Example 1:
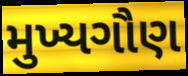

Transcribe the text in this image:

મુખ્યગૌણ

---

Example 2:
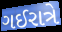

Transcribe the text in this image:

ગઈરાત્રે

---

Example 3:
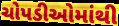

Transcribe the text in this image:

ચોપડીઓમાંથી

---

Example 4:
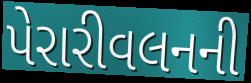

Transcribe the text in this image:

પેરારીવલનની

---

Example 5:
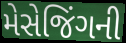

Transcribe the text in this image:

મેસેજિંગની